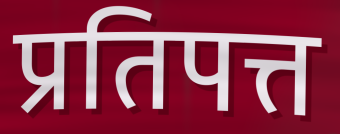
प्रतिपत्त